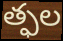
త్ఫల